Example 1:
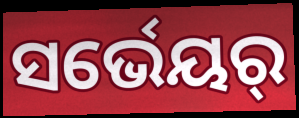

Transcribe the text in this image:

ସର୍ଭେୟର୍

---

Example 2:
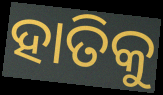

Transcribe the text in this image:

ହାତିକୁ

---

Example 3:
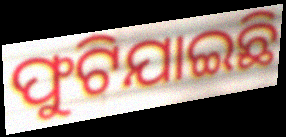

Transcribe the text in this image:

ଫୁଟିଯାଇଛି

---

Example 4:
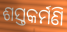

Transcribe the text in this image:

ଶସ୍ତକର୍ମଣି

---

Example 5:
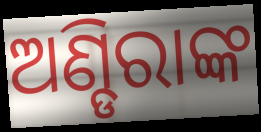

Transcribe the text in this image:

ଅଣ୍ଡିରାଙ୍କ